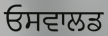
ਓਸਵਾਲਡ